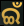
ଇଁ